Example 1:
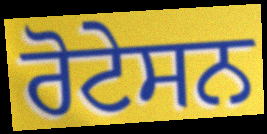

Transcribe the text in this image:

ਰੋਟੇਸਨ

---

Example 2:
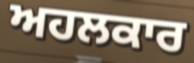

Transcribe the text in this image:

ਅਹਲਕਾਰ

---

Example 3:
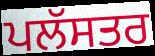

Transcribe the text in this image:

ਪਲੱਸਤਰ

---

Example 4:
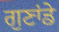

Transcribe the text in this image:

ਗੁਣਾਂਡੇ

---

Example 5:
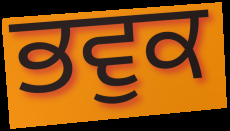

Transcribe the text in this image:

ਭਵੁਕ